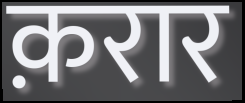
क़रार